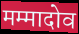
मम्मादोव